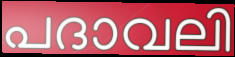
പദാവലി